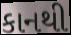
કાનથી